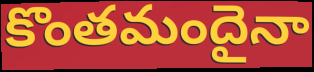
కొంతమందైనా